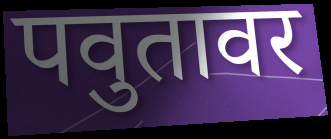
पवुतावर